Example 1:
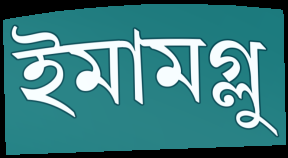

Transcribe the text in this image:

ইমামগ্লু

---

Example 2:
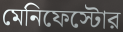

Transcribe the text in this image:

মেনিফেস্টোর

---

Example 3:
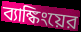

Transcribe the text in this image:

ব্যাঙ্কিংয়ের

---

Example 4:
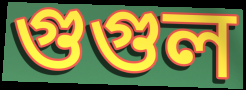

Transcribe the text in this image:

গুগুল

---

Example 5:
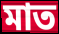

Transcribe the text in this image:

মাত